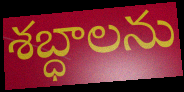
శబ్ధాలను